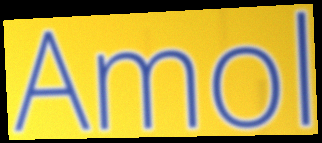
Amol